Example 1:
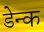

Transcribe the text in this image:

डेन्क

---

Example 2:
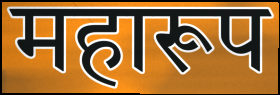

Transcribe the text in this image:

महारूप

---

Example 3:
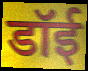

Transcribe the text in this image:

डॉई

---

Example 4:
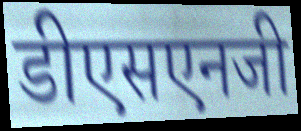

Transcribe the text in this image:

डीएसएनजी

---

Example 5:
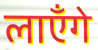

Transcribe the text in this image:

लाएँगे